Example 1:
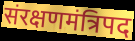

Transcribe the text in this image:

संरक्षणमंत्रिपद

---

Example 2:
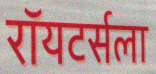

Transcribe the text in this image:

रॉयटर्सला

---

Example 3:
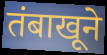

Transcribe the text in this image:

तंबाखूने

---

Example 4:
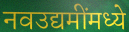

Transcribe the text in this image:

नवउद्यमींमध्ये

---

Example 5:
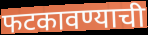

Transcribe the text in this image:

फटकावण्याची